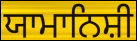
ਯਾਮਾਨਿਸ਼ੀ